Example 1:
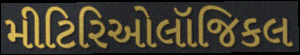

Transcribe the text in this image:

મીટિરિઓલૉજિકલ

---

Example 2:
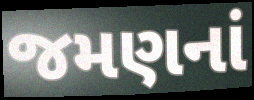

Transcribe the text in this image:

જમણનાં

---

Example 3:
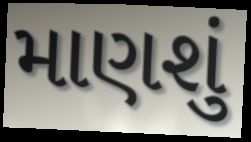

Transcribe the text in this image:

માણશું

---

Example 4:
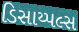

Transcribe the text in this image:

ડિસાય્પલ્સ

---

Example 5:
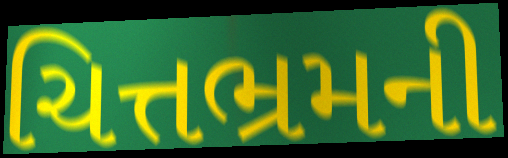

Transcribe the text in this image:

ચિત્તભ્રમની